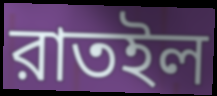
রাতইল